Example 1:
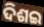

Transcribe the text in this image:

ଦିଶଇ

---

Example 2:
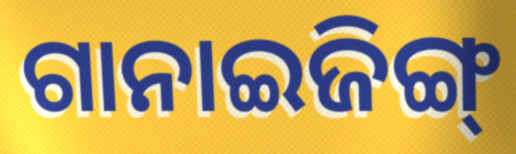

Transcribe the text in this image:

ଗାନାଇଜିଙ୍ଗ୍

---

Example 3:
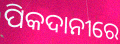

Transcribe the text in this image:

ପିକଦାନୀରେ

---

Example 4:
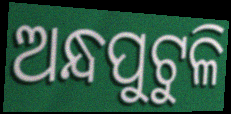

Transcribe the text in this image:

ଅନ୍ଧପୁଟୁଳି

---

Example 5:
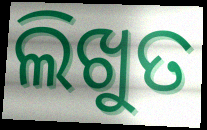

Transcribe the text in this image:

ଲିଖୁତ